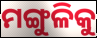
ମଙ୍ଗୁଳିକୁ